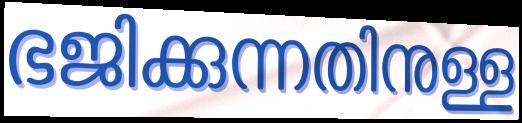
ഭജിക്കുന്നതിനുള്ള